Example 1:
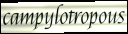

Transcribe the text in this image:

campylotropous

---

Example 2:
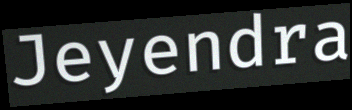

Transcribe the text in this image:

Jeyendra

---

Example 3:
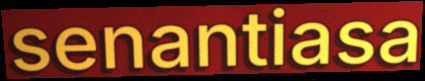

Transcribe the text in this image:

senantiasa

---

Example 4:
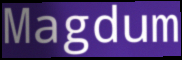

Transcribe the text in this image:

Magdum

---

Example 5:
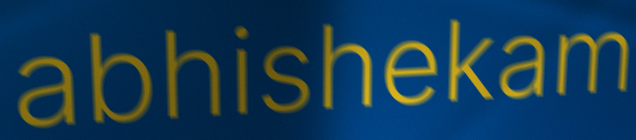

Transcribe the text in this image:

abhishekam